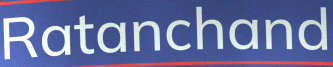
Ratanchand